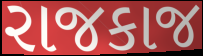
રાજકાજ